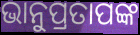
ଭାନୁପ୍ରତାପଙ୍କ